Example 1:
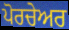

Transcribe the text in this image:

ਪੋਰਚੇਅਰ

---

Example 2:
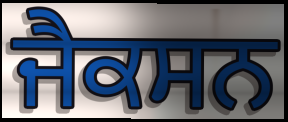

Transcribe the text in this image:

ਜੈਕਸਨ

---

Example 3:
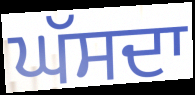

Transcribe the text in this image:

ਘੱਸਦਾ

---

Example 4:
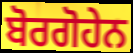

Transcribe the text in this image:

ਬੋਰਗੋਹੇਨ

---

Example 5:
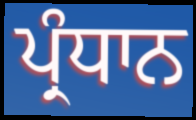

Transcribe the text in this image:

ਪ੍ਰੰਧਾਨ